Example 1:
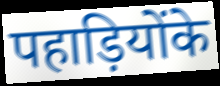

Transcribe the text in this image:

पहाड़ियोंके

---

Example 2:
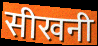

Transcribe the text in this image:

सीखनी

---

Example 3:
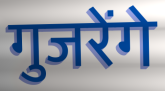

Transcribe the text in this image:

गुजरेंगे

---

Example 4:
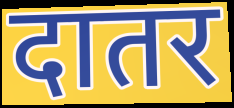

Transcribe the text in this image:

दातर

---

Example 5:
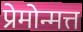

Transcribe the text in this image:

प्रेमोन्मत्त